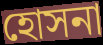
হোসনা